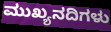
ಮುಖ್ಯನದಿಗಳು